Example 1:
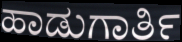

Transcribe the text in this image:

ಹಾಡುಗಾರ್ತಿ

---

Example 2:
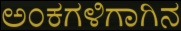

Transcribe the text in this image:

ಅಂಕಗಳಿಗಾಗಿನ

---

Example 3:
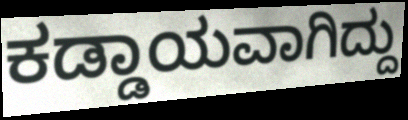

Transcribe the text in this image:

ಕಡ್ಡಾಯವಾಗಿದ್ದು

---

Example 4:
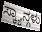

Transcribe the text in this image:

ಸ್ಕ್ಯಾನ್ಗಳು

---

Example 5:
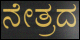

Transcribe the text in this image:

ನೇತ್ರದ